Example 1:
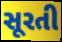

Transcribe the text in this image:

સૂરતી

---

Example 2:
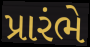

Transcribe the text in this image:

પ્રારંભે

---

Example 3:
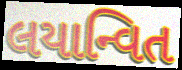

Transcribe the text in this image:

લયાન્વિત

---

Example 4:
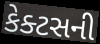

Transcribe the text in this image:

કેક્ટસની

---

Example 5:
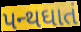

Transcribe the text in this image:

પન્થઘાતં